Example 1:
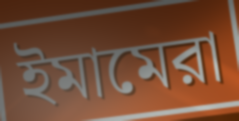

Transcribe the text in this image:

ইমামেরা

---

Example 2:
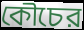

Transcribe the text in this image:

কৌচের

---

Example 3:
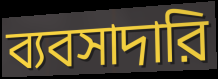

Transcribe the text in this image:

ব্যবসাদারি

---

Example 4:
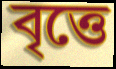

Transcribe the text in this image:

বৃত্তে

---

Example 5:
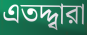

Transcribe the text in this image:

এতদ্দ্বারা